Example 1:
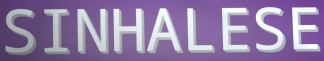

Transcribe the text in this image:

SINHALESE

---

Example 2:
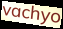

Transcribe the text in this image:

vachyo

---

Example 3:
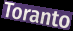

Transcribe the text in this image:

Toranto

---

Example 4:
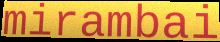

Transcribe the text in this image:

mirambai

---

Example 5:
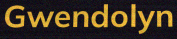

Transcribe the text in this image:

Gwendolyn